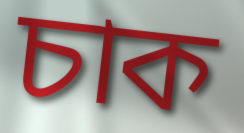
চাক